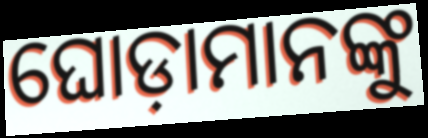
ଘୋଡ଼ାମାନଙ୍କୁ